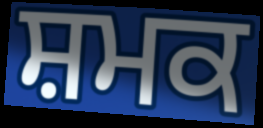
ਸ਼ਮਕ